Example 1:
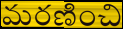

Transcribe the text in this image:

మరణించి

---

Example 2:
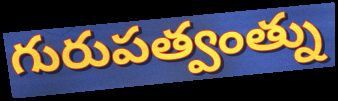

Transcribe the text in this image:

గురుపత్వంత్ను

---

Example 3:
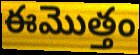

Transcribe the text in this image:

ఈమొత్తం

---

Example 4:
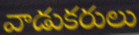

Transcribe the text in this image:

వాడుకరులు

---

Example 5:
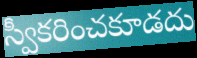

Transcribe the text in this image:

స్వీకరించకూడదు